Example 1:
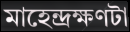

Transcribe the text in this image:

মাহেন্দ্রক্ষণটা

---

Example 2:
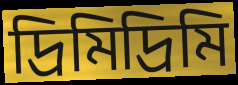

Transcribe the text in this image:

দ্রিমিদ্রিমি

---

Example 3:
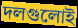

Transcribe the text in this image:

দলগুলোই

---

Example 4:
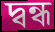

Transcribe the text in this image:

দ্বন্ধ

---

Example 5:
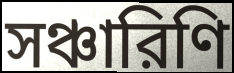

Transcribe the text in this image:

সঞ্চারিণি